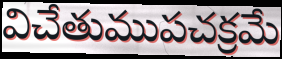
విచేతుముపచక్రమే